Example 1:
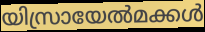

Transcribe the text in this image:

യിസ്രായേൽമക്കൾ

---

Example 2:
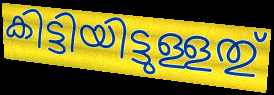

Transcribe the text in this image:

കിട്ടിയിട്ടുള്ളതു്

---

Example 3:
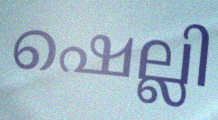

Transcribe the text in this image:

ഷെല്ലി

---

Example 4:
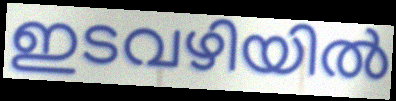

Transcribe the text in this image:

ഇടവഴിയിൽ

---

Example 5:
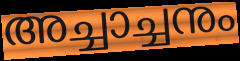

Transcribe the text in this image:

അച്ചാച്ചനും